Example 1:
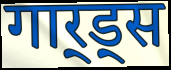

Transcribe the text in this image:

गार्ड्स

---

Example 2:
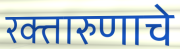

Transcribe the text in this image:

रक्तारुणाचे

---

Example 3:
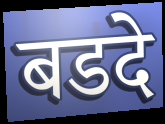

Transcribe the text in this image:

बडदे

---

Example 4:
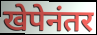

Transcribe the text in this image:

खेपेनंतर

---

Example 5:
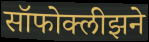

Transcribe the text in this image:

सॉफोक्लीझने